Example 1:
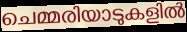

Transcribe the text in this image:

ചെമ്മരിയാടുകളിൽ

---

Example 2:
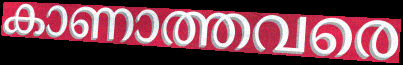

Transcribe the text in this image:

കാണാത്തവരെ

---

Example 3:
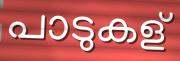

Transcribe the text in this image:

പാടുകള്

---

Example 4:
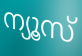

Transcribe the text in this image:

ന്യൂസ്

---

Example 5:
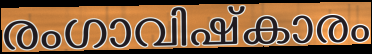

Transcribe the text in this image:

രംഗാവിഷ്‌കാരം